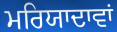
ਮਰਿਯਾਦਾਵਾਂ